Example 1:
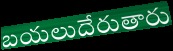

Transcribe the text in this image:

బయలుదేరుతారు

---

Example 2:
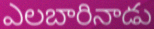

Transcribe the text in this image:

ఎలబారినాడు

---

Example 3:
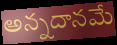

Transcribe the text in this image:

అన్నదానమే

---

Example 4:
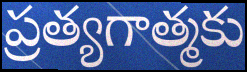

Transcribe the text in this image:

ప్రత్యగాత్మకు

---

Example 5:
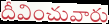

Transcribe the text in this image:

దీవించువారు